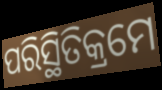
ପରିସ୍ଥିତିକ୍ରମେ